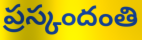
ప్రస్కందంతి